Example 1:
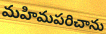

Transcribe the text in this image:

మహిమపరిచాను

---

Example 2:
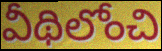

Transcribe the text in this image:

వీథిలోంచి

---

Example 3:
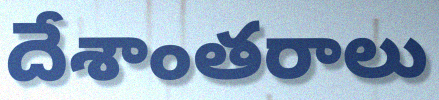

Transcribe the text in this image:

దేశాంతరాలు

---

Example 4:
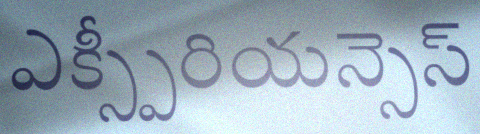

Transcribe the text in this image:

ఎక్స్పీరియన్సెస్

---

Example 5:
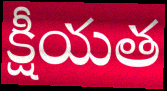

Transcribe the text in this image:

క్షీయత